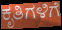
ಕೃತಿಗಳಿಗೆ